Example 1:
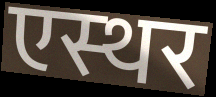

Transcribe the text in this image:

एस्थर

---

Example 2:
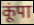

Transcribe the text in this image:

कूंपा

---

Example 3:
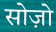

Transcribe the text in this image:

सोज़ो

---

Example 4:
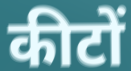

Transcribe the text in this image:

कीटों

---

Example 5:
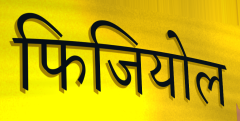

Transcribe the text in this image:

फिजियोल